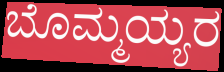
ಬೊಮ್ಮಯ್ಯರ